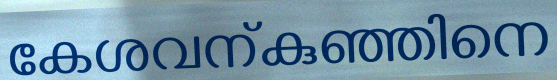
കേശവന്കുഞ്ഞിനെ